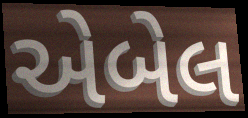
એબેલ